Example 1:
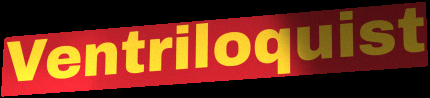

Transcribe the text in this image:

Ventriloquist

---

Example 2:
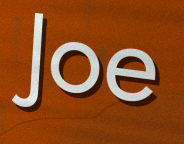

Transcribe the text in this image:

Joe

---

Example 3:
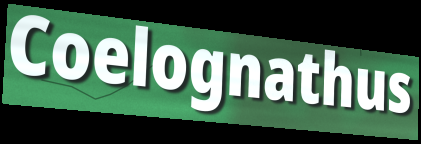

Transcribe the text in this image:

Coelognathus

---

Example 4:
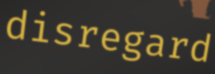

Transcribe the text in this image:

disregard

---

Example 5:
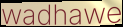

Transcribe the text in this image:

wadhawe